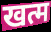
खत्म